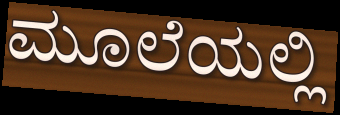
ಮೂಲೆಯಲ್ಲಿ